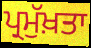
ਪ੍ਰਮੁੱਖ਼ਤਾ